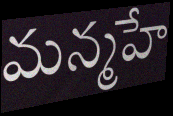
మన్మహే